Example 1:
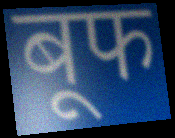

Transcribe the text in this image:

बूफ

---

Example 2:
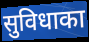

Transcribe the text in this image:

सुविधाका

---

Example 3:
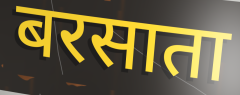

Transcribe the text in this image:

बरसाता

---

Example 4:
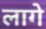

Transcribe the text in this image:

लागे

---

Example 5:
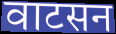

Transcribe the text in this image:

वाटसन